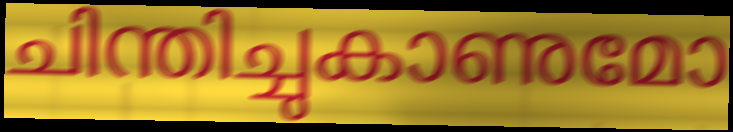
ചിന്തിച്ചുകാണുമോ